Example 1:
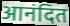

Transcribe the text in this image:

आनंदित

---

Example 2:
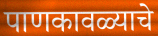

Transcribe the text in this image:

पाणकावळ्याचे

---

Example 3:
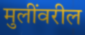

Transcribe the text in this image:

मुलींवरील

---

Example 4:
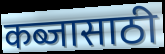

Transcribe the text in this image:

कब्जासाठी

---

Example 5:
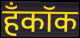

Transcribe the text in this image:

हँकॉक